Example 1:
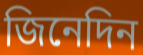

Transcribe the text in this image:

জিনেদিন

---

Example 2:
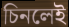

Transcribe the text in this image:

চিনলেই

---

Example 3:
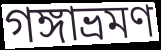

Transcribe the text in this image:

গঙ্গাভ্রমণ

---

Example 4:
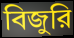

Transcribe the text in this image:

বিজুরি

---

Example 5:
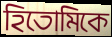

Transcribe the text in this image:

হিতোমিকে